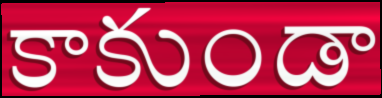
కాకుండా